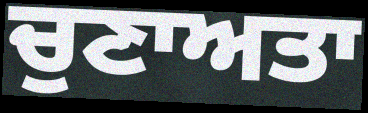
ਚੁਣਾਅਤਾ